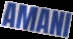
AMANI